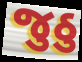
જુઠુ